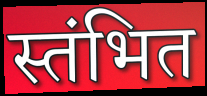
स्तंभित